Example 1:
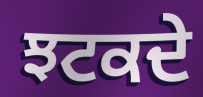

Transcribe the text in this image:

ਝਟਕਦੇ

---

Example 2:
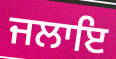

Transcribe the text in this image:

ਜਲਾਇ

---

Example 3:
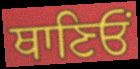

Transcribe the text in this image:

ਥਾਣਿਓਂ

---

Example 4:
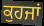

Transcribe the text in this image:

ਕੁਹਜਾਂ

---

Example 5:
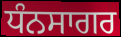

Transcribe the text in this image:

ਧੰਨਸਾਗਰ